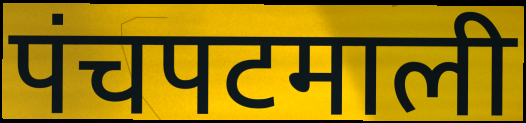
पंचपटमाली